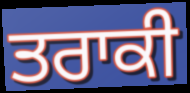
ਤਰਾਕੀ